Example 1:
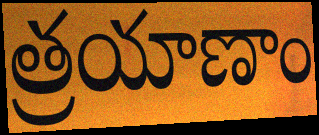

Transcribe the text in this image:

త్రయాణాం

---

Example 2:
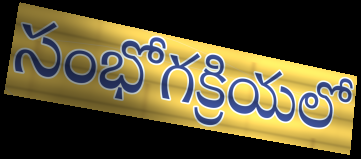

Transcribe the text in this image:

సంభోగక్రియలో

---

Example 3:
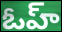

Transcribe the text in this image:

ఓహ్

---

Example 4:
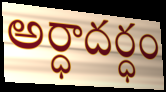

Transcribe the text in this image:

అర్ధాదర్ధం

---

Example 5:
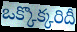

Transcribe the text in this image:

ఒక్కొక్కరిదీ